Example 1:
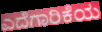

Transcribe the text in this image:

ಎದೆಗಾರಿಕೆಯ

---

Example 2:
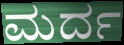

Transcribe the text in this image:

ಮರ್ದ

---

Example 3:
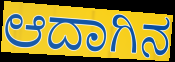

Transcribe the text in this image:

ಆದಾಗಿನ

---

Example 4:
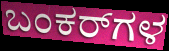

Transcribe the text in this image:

ಬಂಕರ್‌ಗಳ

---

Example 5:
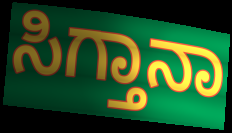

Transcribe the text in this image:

ಸಿಗ್ತಾನಾ